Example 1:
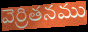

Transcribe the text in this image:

వెర్రితనము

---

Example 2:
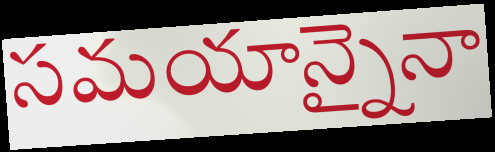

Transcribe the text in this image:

సమయాన్నైనా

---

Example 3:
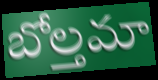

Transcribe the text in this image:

బోల్తమా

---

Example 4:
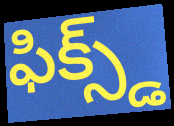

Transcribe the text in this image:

ఫిక్స్డ్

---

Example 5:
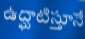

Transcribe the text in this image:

ఉద్ఘాటిస్తూనే